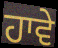
ਹਾਵੇ